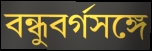
বন্ধুবর্গসঙ্গে